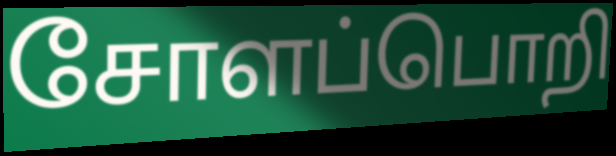
சோளப்பொறி